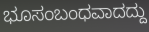
ಭೂಸಂಬಂಧವಾದದ್ದು